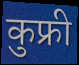
कुफ्री